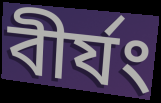
বীর্যং